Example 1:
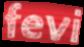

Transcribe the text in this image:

fevi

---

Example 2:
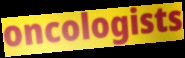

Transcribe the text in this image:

oncologists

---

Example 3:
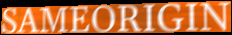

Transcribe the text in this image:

SAMEORIGIN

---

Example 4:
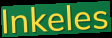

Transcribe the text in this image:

Inkeles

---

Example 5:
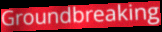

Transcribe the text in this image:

Groundbreaking